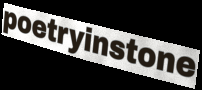
poetryinstone